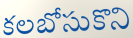
కలబోసుకొని